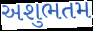
અશુભતમ